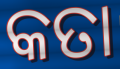
କତା